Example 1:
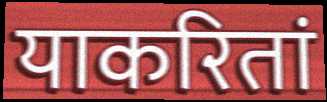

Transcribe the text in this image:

याकरितां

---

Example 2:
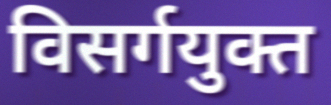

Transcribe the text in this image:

विसर्गयुक्त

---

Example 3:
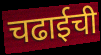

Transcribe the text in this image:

चढाईची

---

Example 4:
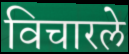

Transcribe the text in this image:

विचारले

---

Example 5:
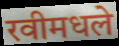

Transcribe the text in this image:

रवीमधले